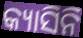
କ୍ୟାସିନି